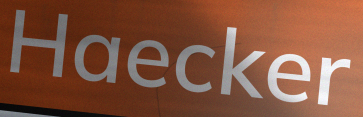
Haecker